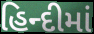
હિન્દીમાં